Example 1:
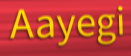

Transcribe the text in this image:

Aayegi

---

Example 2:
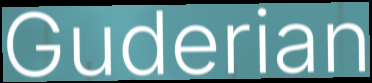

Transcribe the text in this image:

Guderian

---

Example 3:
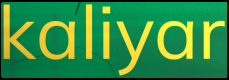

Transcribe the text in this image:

kaliyar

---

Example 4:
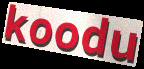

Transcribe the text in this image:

koodu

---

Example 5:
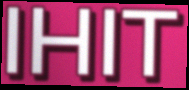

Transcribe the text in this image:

IHIT